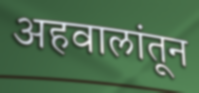
अहवालांतून